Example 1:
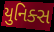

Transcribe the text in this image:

યુનિક્સ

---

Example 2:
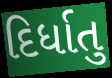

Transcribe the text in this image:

દિર્ધાતુ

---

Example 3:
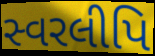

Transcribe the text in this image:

સ્વરલીપિ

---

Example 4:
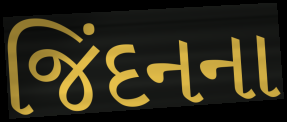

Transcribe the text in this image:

જિંદનના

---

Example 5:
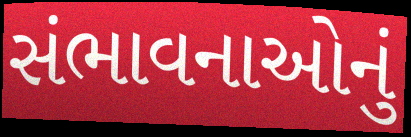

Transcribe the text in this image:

સંભાવનાઓનું